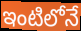
ఇంటిలోనే